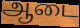
ஆடை